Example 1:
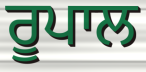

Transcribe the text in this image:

ਰੂਪਾਲ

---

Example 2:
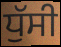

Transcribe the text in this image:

ਧੁੱਸੀ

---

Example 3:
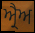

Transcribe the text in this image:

ਅ੍ਰੈਅ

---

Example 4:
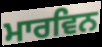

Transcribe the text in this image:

ਮਾਰਵਿਨ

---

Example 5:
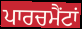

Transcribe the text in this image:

ਪਾਰਚਮੈਂਟਾਂ